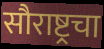
सौराष्ट्रचा